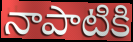
నాపాటికి